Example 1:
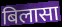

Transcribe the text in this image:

बिलासा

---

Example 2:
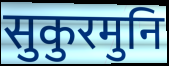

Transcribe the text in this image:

सुकुरमुनि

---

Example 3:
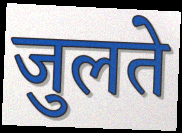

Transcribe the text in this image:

जुलते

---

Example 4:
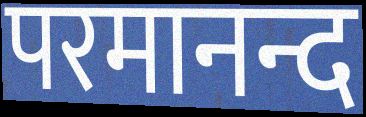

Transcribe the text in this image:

परमानन्‍द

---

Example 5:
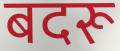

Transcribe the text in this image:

बदरू